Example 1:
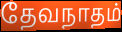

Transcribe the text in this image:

தேவநாதம்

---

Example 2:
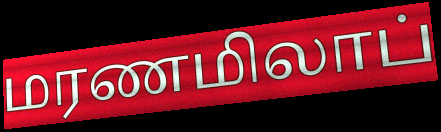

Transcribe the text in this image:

மரணமிலாப்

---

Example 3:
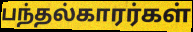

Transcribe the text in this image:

பந்தல்காரர்கள்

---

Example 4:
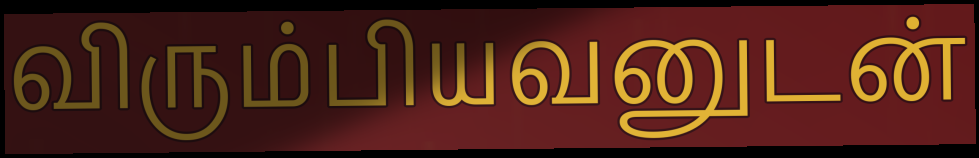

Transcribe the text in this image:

விரும்பியவனுடன்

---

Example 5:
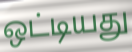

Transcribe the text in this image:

ஒட்டியது